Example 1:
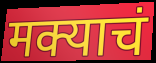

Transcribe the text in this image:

मक्याचं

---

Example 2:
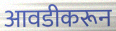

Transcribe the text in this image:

आवडीकरून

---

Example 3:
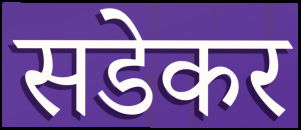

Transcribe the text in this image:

सडेकर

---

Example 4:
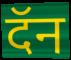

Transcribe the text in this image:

दॅन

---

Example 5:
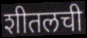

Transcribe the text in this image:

शीतलची